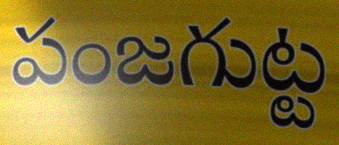
పంజగుట్ట